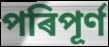
পৰিপূৰ্ণ